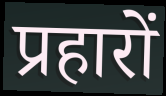
प्रहारों